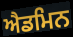
ਐਡਮਿਨ